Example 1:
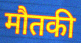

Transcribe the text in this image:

मौतकी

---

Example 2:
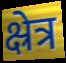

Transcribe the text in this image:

क्ष्रेत्र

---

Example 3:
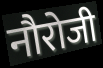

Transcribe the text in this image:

नौरोजी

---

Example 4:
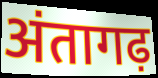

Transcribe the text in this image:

अंतागढ़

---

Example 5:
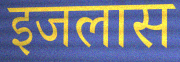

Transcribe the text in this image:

इजलास